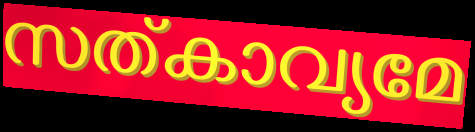
സത്കാവ്യമേ